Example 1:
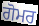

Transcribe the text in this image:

ਗੋਮਰ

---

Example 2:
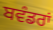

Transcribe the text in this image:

ਬਵੰਡਰਾਂ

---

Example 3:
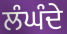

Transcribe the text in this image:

ਲੰਘੰਦੇ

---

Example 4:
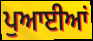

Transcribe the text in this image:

ਪੁਆਈਆਂ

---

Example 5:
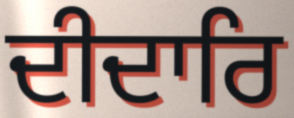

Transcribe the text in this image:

ਦੀਦਾਰਿ